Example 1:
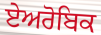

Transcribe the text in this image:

ਏਅਰੋਬਿਕ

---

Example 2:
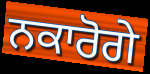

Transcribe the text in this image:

ਨਕਾਰੋਗੇ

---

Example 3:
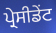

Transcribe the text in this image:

ਪ੍ਰੇਸੀਡੇਂਟ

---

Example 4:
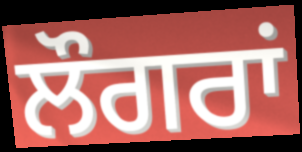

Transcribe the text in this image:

ਲੌਗਰਾਂ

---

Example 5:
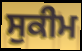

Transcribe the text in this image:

ਸੁਕੀਮ